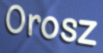
Orosz